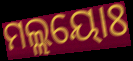
ମଲ୍ଲୟୋଃ